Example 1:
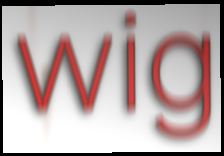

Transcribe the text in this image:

wig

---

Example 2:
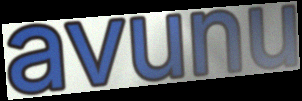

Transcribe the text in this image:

avunu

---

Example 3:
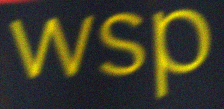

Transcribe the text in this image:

wsp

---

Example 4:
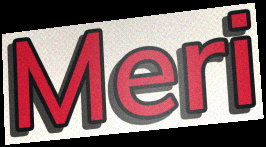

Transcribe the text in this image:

Meri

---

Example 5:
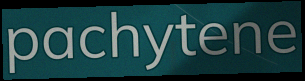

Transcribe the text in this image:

pachytene